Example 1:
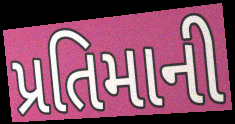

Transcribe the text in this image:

પ્રતિમાની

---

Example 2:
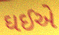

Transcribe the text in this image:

ઘઈએ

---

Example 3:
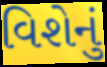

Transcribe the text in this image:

વિશેનું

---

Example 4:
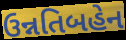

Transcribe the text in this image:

ઉન્નતિબહેન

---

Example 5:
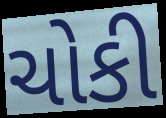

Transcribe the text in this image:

ચોકી